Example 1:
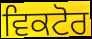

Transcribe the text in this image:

ਵਿਕਟੋਰ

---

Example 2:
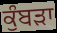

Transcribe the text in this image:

ਕੁੰਬੜਾ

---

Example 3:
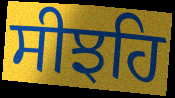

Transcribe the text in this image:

ਸੀਝਹਿ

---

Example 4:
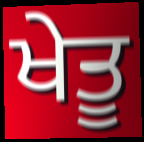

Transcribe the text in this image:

ਖੇਤੂ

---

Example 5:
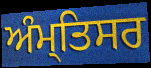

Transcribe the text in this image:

ਅੰਮ੍ਤਿਸਰ